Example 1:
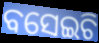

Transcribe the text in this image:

ବସେଇଚି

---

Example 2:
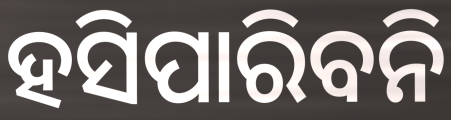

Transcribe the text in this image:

ହସିପାରିବନି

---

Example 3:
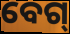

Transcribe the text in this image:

ବେଗ୍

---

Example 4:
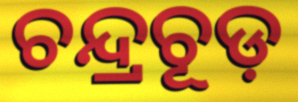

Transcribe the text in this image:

ଚନ୍ଦ୍ରଚୂଡ଼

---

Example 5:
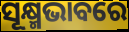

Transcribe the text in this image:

ସୂକ୍ଷ୍ମଭାବରେ